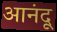
आनंदू